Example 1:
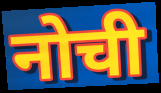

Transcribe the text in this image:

नोची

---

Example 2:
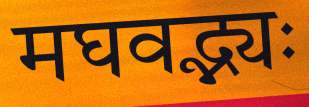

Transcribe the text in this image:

मघवद्भ्यः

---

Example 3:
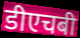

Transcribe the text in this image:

डीएचबी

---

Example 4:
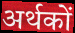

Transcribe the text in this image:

अर्थकों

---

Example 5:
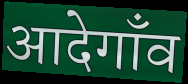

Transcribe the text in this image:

आदेगाँव